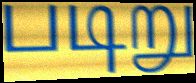
படிறு